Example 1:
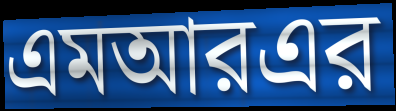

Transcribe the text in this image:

এমআরএর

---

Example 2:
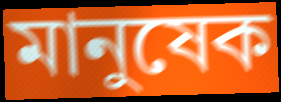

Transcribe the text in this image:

মানুষেক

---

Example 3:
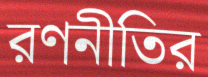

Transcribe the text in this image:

রণনীতির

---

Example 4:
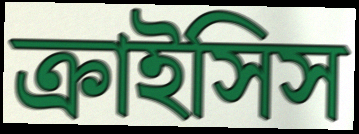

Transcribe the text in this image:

ক্রাইসিস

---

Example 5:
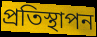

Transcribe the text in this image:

প্রতিস্থাপন